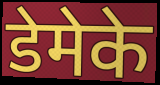
डेमेके